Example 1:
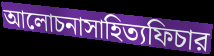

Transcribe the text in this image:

আলোচনাসাহিত্যফিচার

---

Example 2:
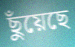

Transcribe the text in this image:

ছুঁয়েছে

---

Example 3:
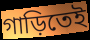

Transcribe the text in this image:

গাড়িতেই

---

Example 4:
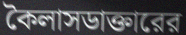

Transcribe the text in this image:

কৈলাসডাক্তারের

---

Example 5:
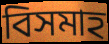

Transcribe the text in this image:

বিসমাহ